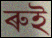
ৰুই